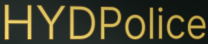
HYDPolice